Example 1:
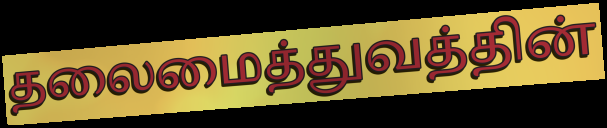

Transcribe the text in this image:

தலைமைத்துவத்தின்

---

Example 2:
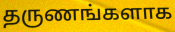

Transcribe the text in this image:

தருணங்களாக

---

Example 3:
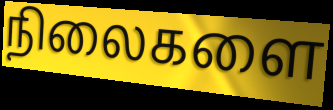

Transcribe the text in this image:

நிலைகளை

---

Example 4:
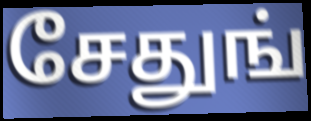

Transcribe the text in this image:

சேதுங்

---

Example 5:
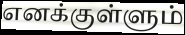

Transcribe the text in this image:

எனக்குள்ளும்